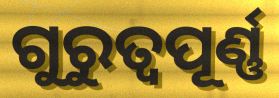
ଗୁରୁତ୍ବପୂର୍ଣ୍ଣ